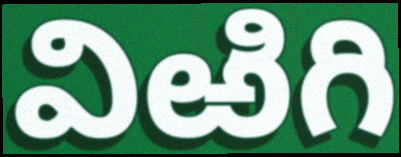
విఱిగి